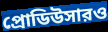
প্রোডিউসারও